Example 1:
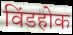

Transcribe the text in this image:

विंडहोक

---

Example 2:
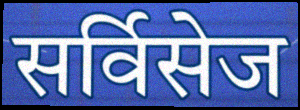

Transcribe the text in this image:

सर्विसेज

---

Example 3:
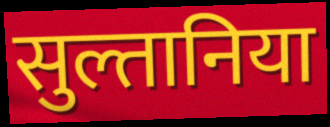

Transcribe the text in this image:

सुल्तानिया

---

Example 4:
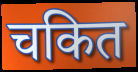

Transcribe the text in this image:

चकित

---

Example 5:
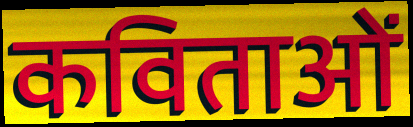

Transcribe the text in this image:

कविताओं